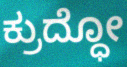
ಕ್ರುದ್ಧೋ